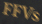
FFVs